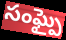
సంఘ్పై